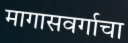
मागासवर्गाचा